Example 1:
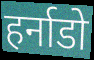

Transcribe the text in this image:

हर्नाडो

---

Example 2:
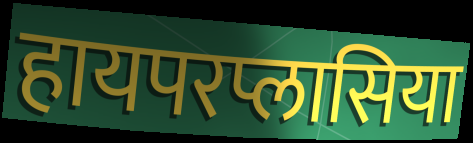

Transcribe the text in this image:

हायपरप्लासिया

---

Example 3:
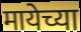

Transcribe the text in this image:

मायेच्या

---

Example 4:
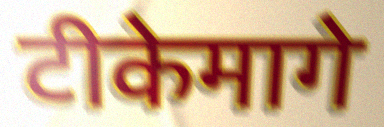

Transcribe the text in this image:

टीकेमागे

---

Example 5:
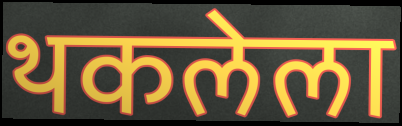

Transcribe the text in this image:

थकलेला